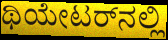
ಥಿಯೇಟರ್‌ನಲ್ಲಿ